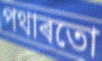
পথাৰতো